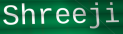
Shreeji